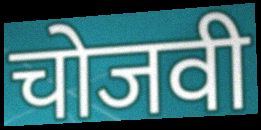
चोजवी